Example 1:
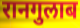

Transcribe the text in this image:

रानगुलाब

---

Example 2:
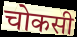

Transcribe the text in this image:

चोकसी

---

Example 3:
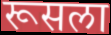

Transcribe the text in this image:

रूसला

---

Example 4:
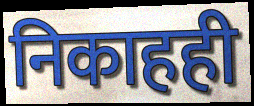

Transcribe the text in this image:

निकाहही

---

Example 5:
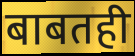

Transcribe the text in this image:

बाबतही